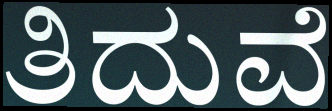
ತಿದುವೆ